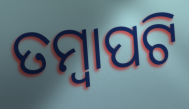
ତମ୍ବାପଟି